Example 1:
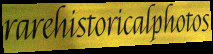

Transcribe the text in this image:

rarehistoricalphotos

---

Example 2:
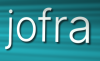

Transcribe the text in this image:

jofra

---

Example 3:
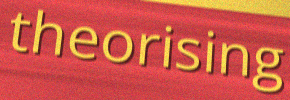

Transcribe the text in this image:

theorising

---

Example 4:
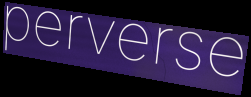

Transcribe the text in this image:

perverse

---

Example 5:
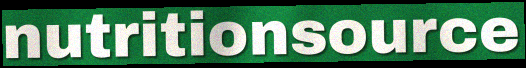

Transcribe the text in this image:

nutritionsource